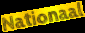
Nationaal